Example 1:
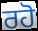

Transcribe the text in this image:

ਰਹੋ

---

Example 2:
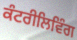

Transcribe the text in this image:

ਕੰਟਰੀਲਿਵਿੰਗ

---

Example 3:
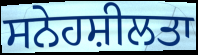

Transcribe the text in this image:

ਸਨੇਹਸ਼ੀਲਤਾ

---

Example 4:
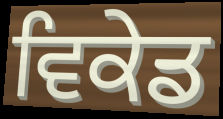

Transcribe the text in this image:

ਵਿਕੇਡ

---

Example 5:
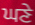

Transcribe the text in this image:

ਘਣੇ